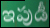
ఇపుడీ